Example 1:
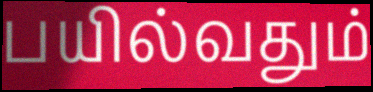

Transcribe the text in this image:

பயில்வதும்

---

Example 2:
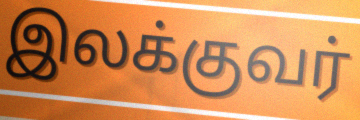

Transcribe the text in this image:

இலக்குவர்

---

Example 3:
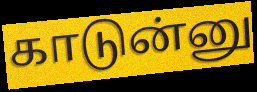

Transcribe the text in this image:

காடுன்னு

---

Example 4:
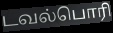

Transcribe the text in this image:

டவல்பொரி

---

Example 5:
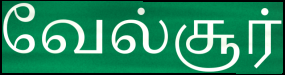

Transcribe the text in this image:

வேல்சூர்